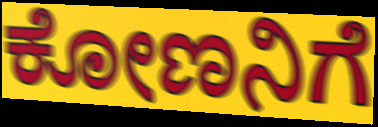
ಕೋಣನಿಗೆ